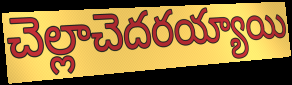
చెల్లాచెదరయ్యాయి